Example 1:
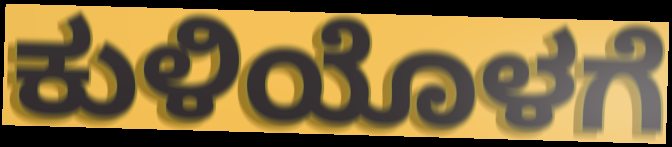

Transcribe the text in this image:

ಕುಳಿಯೊಳಗೆ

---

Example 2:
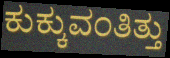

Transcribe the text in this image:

ಕುಕ್ಕುವಂತಿತ್ತು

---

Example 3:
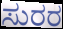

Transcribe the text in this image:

ಸುರರ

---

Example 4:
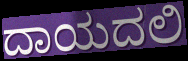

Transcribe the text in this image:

ದಾಯದಲಿ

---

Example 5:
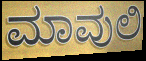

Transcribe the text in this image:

ಮಾವುಲಿ